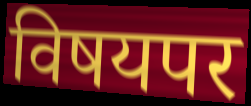
विषयपर